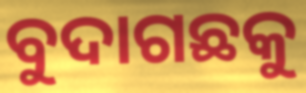
ବୁଦାଗଛକୁ